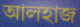
আলহাজ